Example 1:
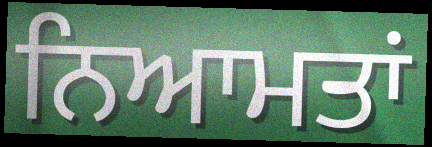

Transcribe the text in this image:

ਨਿਆਮਤਾਂ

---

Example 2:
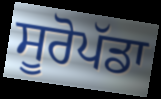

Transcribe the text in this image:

ਸੂਰੋਪੱਡਾ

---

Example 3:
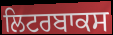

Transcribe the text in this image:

ਲਿਟਰਬਾਕਸ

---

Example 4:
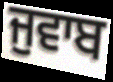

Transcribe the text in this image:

ਜੁਵਾਬ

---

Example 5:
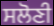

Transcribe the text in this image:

ਸਲੋਣੀ